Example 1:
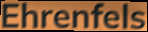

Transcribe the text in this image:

Ehrenfels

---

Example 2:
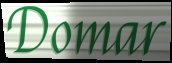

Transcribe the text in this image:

Domar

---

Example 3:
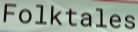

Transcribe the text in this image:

Folktales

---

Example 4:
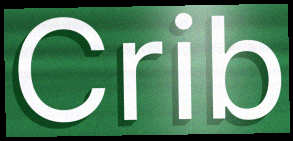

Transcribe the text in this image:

Crib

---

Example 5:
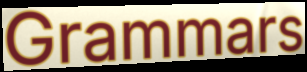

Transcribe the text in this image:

Grammars